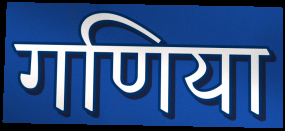
गणिया